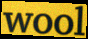
wool